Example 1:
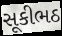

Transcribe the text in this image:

સૂકીભઠ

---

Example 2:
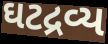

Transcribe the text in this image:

ઘટદ્રવ્ય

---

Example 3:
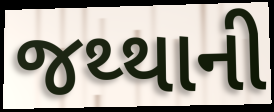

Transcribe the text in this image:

જથ્થાની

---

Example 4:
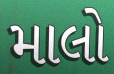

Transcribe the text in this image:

માલો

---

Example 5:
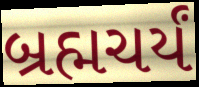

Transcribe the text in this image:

બ્રહ્મચર્યં